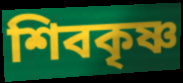
শিবকৃষ্ণ